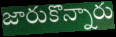
జారుకొన్నారు